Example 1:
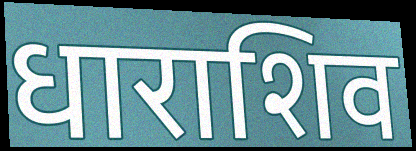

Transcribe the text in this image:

धाराशिव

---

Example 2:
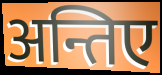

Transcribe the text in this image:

अन्तिए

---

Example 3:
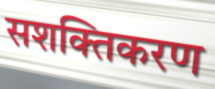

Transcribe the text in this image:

सशक्तिकरण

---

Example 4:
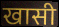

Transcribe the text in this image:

खासी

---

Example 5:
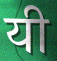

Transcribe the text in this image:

यी